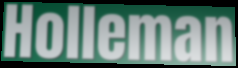
Holleman